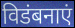
विडंबनाएं